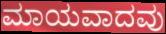
ಮಾಯವಾದವು